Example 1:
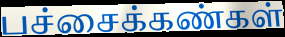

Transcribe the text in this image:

பச்சைக்கண்கள்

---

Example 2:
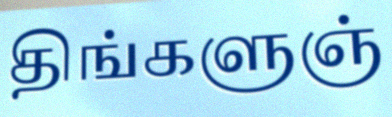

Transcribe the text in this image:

திங்களுஞ்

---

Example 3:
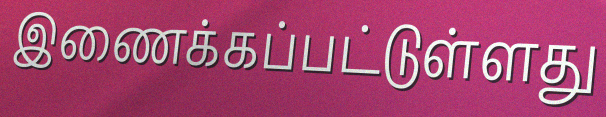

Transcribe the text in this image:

இணைக்கப்பட்டுள்ளது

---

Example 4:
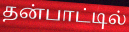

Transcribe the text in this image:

தன்பாட்டில்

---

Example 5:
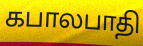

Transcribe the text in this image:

கபாலபாதி